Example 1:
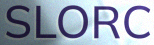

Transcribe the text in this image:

SLORC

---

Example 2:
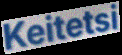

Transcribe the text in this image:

Keitetsi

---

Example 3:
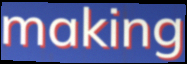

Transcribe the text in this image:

making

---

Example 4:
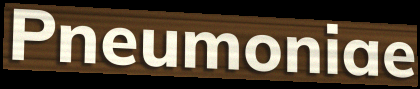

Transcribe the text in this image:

Pneumoniae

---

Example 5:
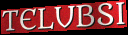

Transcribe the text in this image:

TELUBSI